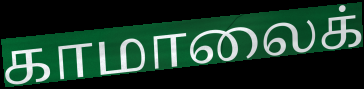
காமாலைக்